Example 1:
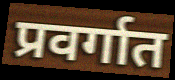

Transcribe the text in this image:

प्रवर्गात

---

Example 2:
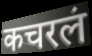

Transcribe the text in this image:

कचरलं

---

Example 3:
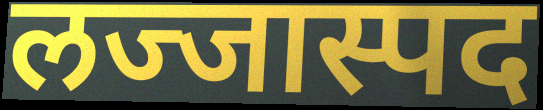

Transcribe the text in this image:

लज्जास्पद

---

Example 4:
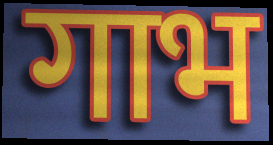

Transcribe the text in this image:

गाभ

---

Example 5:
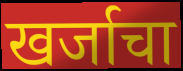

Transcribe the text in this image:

खर्जाचा